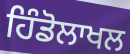
ਹਿੰਡੋਲਾਖਲ